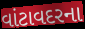
વાંટાવદરના